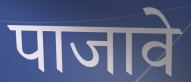
पाजावे